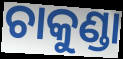
ଚାକୁଣ୍ଡା